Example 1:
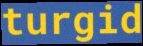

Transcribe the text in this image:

turgid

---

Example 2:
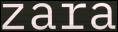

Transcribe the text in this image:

zara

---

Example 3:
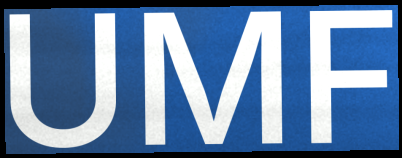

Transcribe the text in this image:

UMF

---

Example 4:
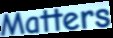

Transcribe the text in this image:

Matters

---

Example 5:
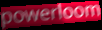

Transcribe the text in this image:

powerloom